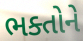
ભક્તોને